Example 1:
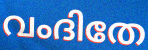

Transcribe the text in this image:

വംദിതേ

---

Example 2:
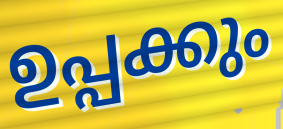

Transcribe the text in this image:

ഉപ്പക്കും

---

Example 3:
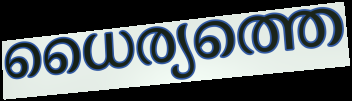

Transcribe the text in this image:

ധൈര്യത്തെ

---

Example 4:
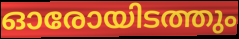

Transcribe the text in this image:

ഓരോയിടത്തും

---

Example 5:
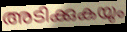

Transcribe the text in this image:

അടിക്കുകയും